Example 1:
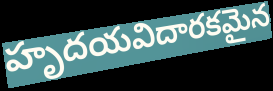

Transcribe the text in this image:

హృదయవిదారకమైన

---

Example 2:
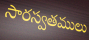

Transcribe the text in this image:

సారస్వతములు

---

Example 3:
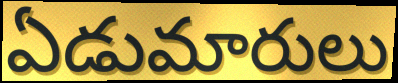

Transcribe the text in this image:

ఏడుమారులు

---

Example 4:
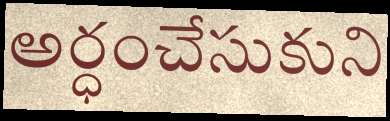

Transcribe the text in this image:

అర్ధంచేసుకుని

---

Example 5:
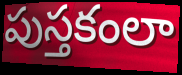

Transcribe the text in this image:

పుస్తకంలా